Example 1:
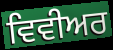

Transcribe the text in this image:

ਵਿਵੀਅਰ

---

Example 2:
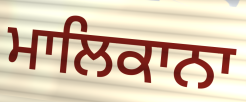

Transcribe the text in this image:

ਮਾਲਿਕਾਨਾ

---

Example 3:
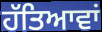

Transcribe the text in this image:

ਹੱਤਿਆਵਾਂ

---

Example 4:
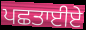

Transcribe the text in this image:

ਪਛਤਾਈਏ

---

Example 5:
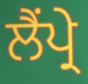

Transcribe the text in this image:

ਲੈਂਪ੍ਰੇ